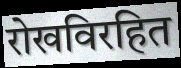
रोखविरहित